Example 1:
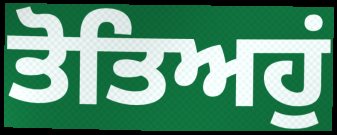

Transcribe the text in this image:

ਤੋਤਿਅਹੁਂ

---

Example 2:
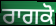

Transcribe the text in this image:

ਰਾਗਕੋ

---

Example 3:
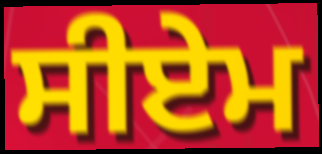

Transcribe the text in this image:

ਸੀਏਮ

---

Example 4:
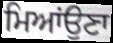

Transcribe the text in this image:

ਮਿਆਂਉਣਾ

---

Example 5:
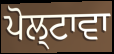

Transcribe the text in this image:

ਪੋਲ੍ਟਾਵਾ